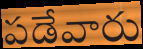
పడేవారు